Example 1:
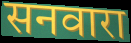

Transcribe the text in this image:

सनवारा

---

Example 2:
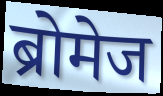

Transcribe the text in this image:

ब्रोमेज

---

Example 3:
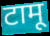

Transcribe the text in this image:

टामू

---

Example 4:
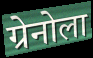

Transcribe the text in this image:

ग्रेनोला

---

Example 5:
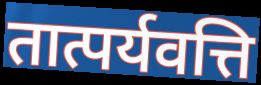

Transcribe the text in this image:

तात्पर्यवत्ति